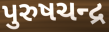
પુરુષચન્દ્ર